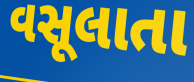
વસૂલાતા